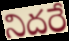
నిదరే